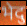
भेदु